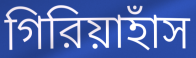
গিরিয়াহাঁস